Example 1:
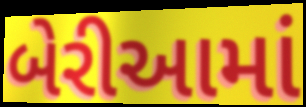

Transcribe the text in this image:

બેરીઆમાં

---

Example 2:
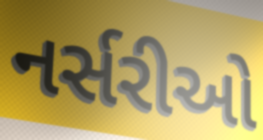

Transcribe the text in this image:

નર્સરીઓ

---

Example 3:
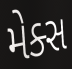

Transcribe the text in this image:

મેક્સ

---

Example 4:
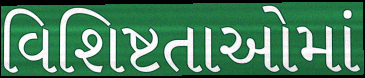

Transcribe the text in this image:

વિશિષ્ટતાઓમાં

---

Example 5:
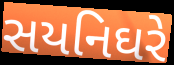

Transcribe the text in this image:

સયનિઘરે